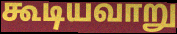
கூடியவாறு